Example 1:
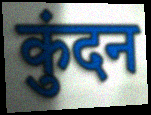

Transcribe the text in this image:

कुंदन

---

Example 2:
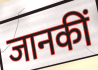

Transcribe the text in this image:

जानकीं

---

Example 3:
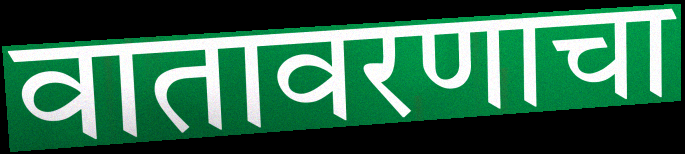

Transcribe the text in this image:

वातावरणाचा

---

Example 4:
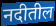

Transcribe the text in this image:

नदीतील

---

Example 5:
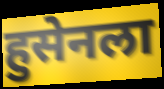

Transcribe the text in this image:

हुसेनला